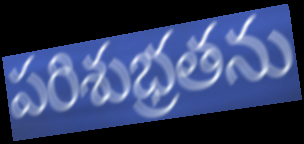
పరిశుభ్రతను